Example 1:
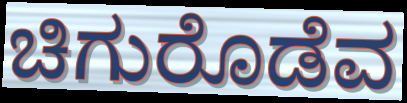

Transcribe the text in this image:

ಚಿಗುರೊಡೆವ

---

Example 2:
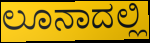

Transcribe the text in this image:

ಲೂನಾದಲ್ಲಿ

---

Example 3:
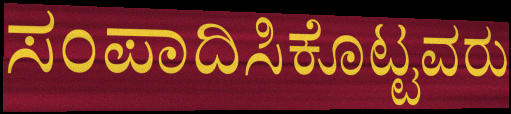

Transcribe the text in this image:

ಸಂಪಾದಿಸಿಕೊಟ್ಟವರು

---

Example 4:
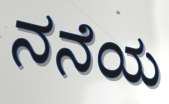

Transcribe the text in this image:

ನನೆಯ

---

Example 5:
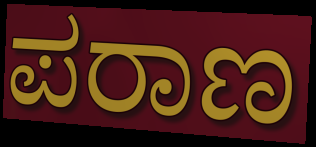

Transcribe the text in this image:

ಪರಾಣ